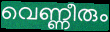
വെണ്ണീരും